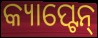
କ୍ୟାପ୍ଟେନ୍